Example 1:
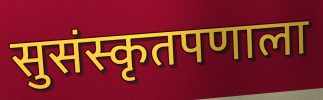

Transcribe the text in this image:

सुसंस्कृतपणाला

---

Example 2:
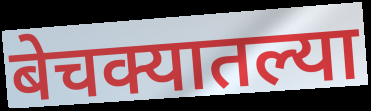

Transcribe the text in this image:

बेचक्यातल्या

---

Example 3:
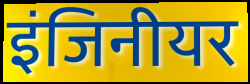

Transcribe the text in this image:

इंजिनीयर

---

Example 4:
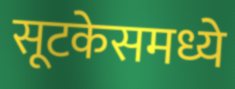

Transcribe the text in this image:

सूटकेसमध्ये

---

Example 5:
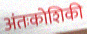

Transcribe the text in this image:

अंतःकोशिकी